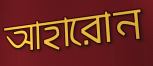
আহারোন